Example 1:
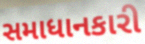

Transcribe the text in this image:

સમાધાનકારી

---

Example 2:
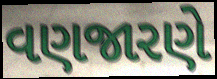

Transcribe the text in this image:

વણજારણે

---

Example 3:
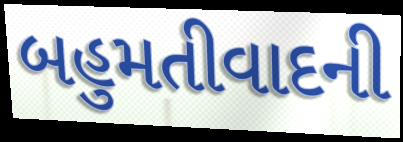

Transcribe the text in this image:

બહુમતીવાદની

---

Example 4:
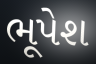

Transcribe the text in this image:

ભૂપેશ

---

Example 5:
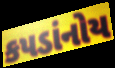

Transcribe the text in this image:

કપડાંનોય